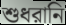
শুধরানি